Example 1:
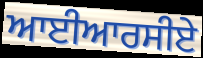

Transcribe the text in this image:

ਆਈਆਰਸੀਏ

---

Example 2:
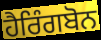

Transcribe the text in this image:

ਹੈਰਿੰਗਬੋਨ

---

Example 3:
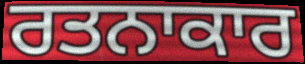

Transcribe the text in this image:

ਰਤਨਾਕਾਰ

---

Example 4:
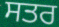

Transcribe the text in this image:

ਸਤਰ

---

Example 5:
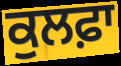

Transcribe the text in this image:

ਕੁਲਫ਼ਾ